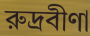
রুদ্রবীণা